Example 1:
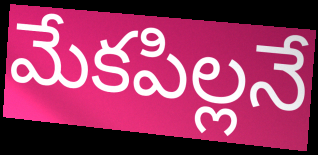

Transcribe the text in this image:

మేకపిల్లనే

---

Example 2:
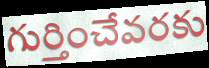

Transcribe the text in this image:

గుర్తించేవరకు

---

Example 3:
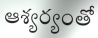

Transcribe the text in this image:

ఆశ్యర్యంతో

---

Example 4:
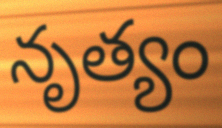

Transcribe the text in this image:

నృత్యం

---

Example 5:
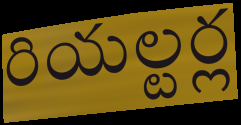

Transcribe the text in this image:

రియల్టర్ల